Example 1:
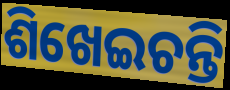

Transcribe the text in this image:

ଶିଖେଇଚନ୍ତି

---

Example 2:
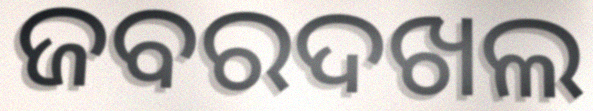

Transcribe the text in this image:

ଜବରଦଖଲ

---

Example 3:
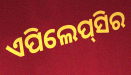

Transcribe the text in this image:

ଏପିଲେପ୍‌ସିର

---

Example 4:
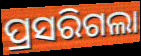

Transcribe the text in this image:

ପ୍ରସରିଗଲା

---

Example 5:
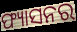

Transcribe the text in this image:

ଫ୍ୟାସନର